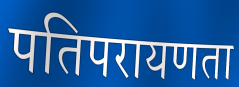
पतिपरायणता